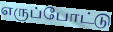
எருப்போட்டு